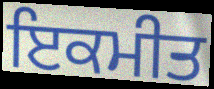
ਇਕਮੀਤ